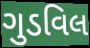
ગુડવિલ